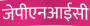
जेपीएनआईसी